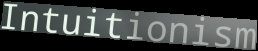
Intuitionism